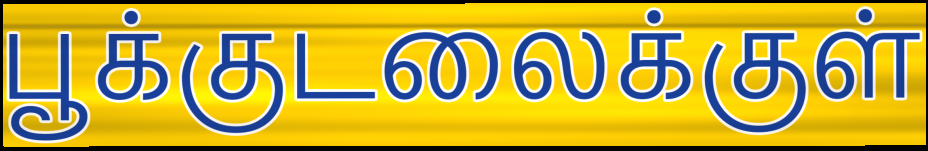
பூக்குடலைக்குள்